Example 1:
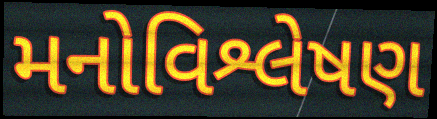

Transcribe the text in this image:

મનોવિશ્લેષણ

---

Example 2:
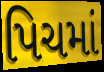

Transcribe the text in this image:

પિચમાં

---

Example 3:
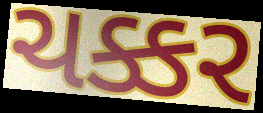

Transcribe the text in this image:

ચક્કર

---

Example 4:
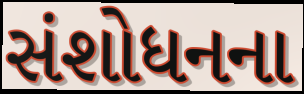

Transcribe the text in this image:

સંશોધનના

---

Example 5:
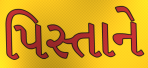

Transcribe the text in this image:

પિસ્તાને